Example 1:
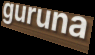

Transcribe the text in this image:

guruna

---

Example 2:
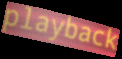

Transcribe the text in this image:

playback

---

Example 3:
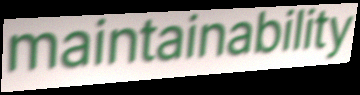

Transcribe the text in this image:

maintainability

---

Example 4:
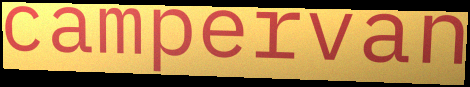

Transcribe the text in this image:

campervan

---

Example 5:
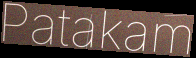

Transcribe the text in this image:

Patakam